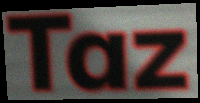
Taz